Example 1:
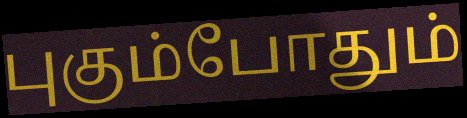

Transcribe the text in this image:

புகும்போதும்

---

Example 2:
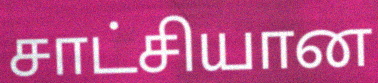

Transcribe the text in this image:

சாட்சியான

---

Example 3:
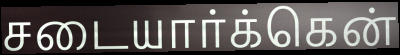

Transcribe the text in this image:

சடையார்க்கென்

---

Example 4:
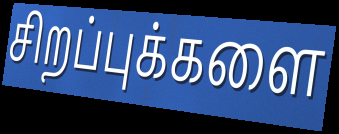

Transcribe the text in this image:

சிறப்புக்களை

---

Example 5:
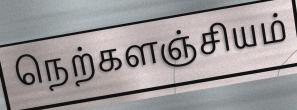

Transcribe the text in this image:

நெற்களஞ்சியம்